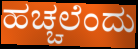
ಹಚ್ಚಲೆಂದು